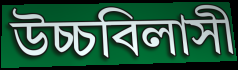
উচ্চবিলাসী